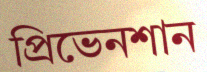
প্রিভেনশান